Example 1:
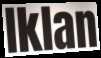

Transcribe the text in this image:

Iklan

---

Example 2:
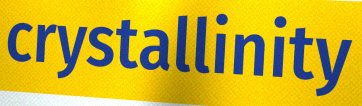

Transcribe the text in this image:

crystallinity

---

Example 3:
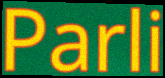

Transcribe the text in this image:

Parli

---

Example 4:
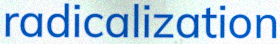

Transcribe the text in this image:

radicalization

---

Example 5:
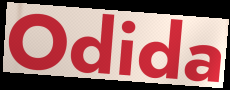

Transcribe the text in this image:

Odida